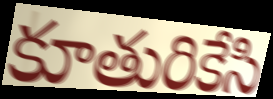
కూతురికేసి